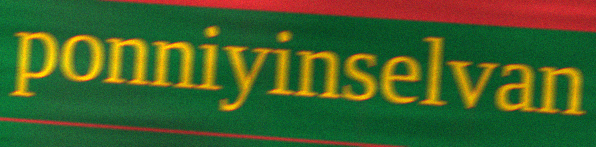
ponniyinselvan